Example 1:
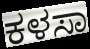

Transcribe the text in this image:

ಕಳಸಾ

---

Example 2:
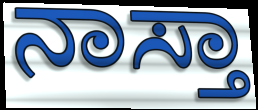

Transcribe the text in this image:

ನಾಸ್ತಾ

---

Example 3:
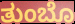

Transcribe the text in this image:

ತುಂಬೊ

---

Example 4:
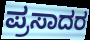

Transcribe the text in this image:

ಪ್ರಸಾದರ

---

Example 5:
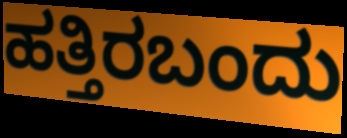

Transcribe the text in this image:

ಹತ್ತಿರಬಂದು